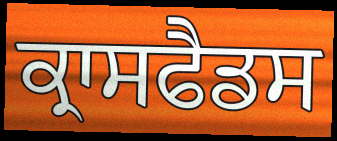
ਕ੍ਰਾਸਫੈਡਸ